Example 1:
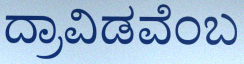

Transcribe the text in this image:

ದ್ರಾವಿಡವೆಂಬ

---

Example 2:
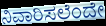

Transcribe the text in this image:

ನಿವಾರಿಸಲೆಂದೇ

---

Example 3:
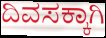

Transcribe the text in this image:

ದಿವಸಕ್ಕಾಗಿ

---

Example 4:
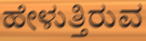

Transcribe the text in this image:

ಹೇಳುತ್ತಿರುವ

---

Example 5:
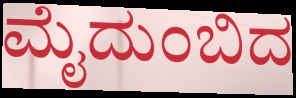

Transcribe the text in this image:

ಮೈದುಂಬಿದ